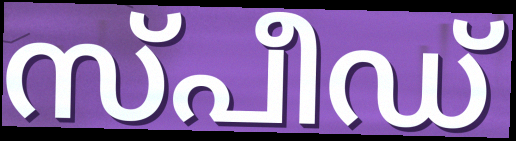
സ്പീഡ്